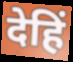
देहिं